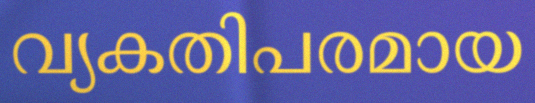
വ്യകതിപരമായ